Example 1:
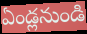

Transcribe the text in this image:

ఏండ్లనుండి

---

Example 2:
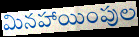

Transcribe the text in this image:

మినహాయింపుల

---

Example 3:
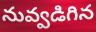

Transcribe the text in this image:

నువ్వడిగిన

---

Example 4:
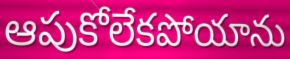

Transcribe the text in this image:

ఆపుకోలేకపోయాను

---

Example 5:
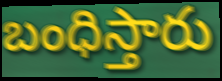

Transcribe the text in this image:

బంధిస్తారు